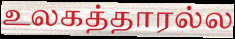
உலகத்தாரல்ல